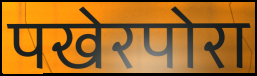
पखेरपोरा